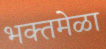
भक्तमेळा